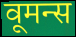
वूमन्स